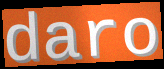
daro